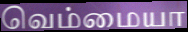
வெம்மையா